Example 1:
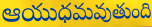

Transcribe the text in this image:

ఆయుధమవుతుంది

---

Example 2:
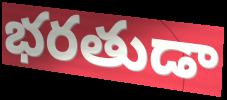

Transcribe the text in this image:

భరతుడా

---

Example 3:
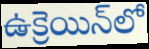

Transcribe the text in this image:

ఉక్రెయిన్‌లో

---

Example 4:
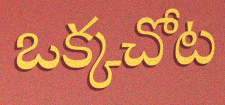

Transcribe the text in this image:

ఒక్కచోట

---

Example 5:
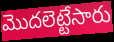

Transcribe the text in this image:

మొదలెట్టేసారు